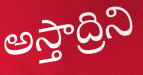
అస్తాద్రిని